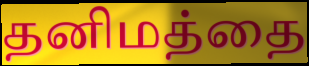
தனிமத்தை